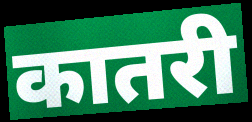
कातरी